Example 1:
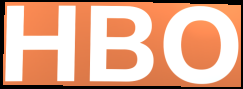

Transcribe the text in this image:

HBO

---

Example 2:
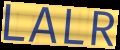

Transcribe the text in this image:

LALR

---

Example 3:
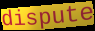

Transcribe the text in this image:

dispute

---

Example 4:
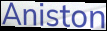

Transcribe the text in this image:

Aniston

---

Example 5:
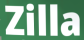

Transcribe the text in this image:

Zilla